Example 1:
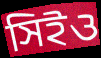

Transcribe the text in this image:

সিইও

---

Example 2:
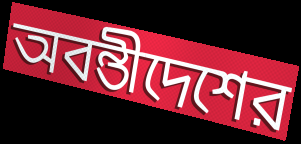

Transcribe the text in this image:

অবন্তীদেশের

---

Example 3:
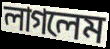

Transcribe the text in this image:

লাগলেম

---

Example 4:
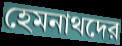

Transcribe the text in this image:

হেমনাথদের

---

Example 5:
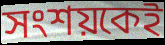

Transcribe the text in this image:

সংশয়কেই